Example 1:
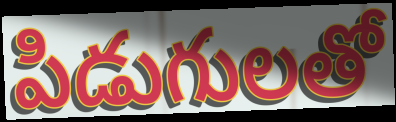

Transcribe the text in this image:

పిడుగులతో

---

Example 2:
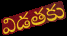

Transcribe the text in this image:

విడతకు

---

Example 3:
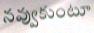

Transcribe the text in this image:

నవ్వుకుంటూ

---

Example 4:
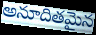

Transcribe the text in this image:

అనూదితమైన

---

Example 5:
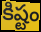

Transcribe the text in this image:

కిష్టం